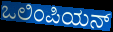
ಒಲಿಂಪಿಯನ್